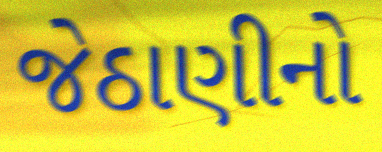
જેઠાણીનો